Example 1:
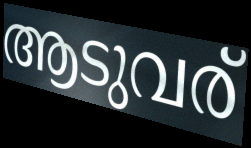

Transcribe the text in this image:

ആടുവര്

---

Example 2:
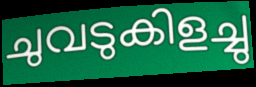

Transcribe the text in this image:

ചുവടുകിളച്ചു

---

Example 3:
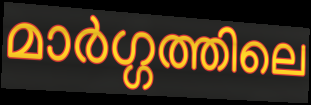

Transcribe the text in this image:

മാർഗ്ഗത്തിലെ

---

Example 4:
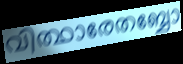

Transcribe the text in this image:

വിത്ഥാരേതബ്ബോ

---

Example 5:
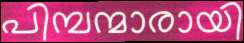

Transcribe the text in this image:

പിമ്പന്മാരായി